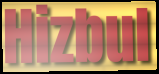
Hizbul